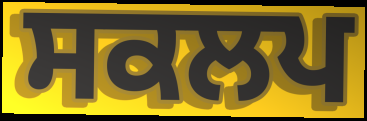
ਸਕਲਪ